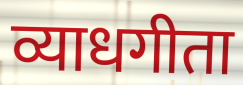
व्याधगीता